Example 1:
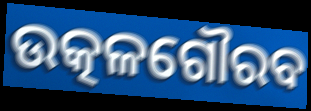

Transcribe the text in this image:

ଉତ୍କଳଗୌରବ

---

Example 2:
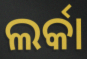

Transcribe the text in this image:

ଲର୍କା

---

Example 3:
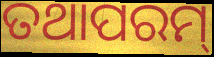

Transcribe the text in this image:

ତଥାପରମ୍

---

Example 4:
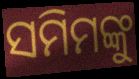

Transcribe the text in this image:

ସମିମଙ୍କୁ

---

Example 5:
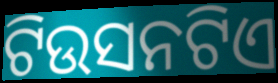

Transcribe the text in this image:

ଟିଉସନଟିଏ